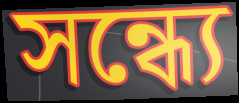
সন্ধ্যে